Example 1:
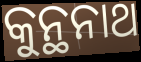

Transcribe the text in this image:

କୁନ୍ଥନାଥ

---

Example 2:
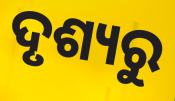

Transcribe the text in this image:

ଦୃଶ୍ୟରୁ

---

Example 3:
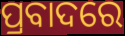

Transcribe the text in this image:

ପ୍ରବାଦରେ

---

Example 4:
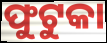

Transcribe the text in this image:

ଫୁଟୁକା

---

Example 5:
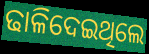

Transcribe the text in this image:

ଢାଳିଦେଇଥିଲେ